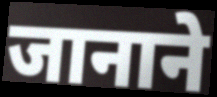
जानाने